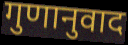
गुणानुवाद